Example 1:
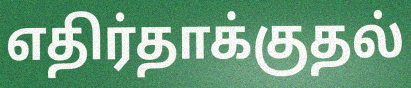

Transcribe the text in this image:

எதிர்தாக்குதல்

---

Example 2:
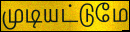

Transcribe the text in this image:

முடியட்டுமே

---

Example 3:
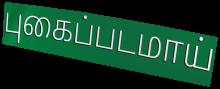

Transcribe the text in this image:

புகைப்படமாய்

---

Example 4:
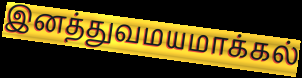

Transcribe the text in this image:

இனத்துவமயமாக்கல்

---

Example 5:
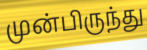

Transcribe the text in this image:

முன்பிருந்து